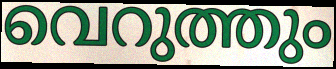
വെറുത്തും